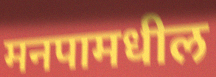
मनपामधील